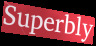
Superbly